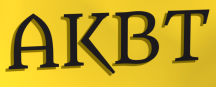
AKBT